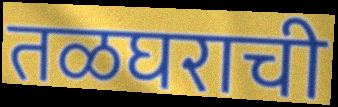
तळघराची